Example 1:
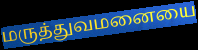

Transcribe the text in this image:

மருத்துவமனையை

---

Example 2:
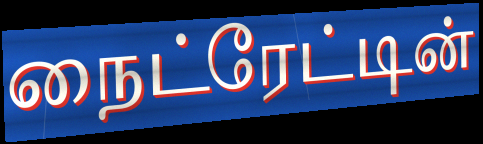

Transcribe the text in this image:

நைட்ரேட்டின்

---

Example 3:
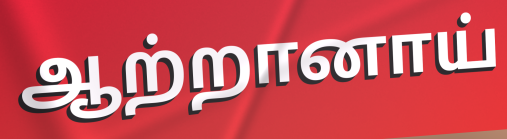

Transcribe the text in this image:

ஆற்றானாய்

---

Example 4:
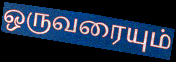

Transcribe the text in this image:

ஒருவரையும்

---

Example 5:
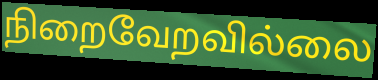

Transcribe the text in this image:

நிறைவேறவில்லை